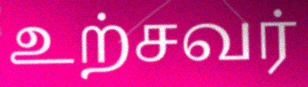
உற்சவர்